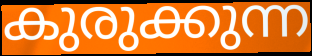
കുരുക്കുന്ന